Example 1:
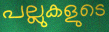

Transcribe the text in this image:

പല്ലുകളുടെ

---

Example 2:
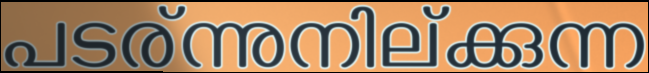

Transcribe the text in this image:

പടര്ന്നുനില്ക്കുന്ന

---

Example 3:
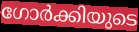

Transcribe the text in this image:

ഗോർക്കിയുടെ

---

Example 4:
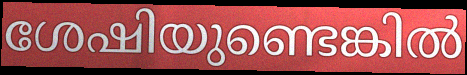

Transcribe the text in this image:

ശേഷിയുണ്ടെങ്കിൽ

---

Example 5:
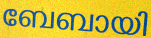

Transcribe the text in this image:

ബേബായി